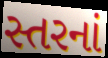
સ્તરનાં